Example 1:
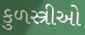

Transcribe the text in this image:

કુળસ્ત્રીઓ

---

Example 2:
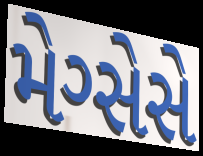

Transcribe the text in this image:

મેગ્સેસે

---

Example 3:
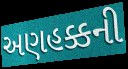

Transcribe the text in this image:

અણહક્કની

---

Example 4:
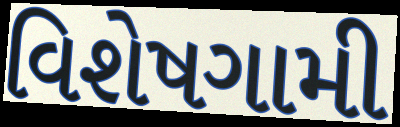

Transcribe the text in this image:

વિશેષગામી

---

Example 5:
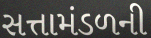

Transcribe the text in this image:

સત્તામંડળની